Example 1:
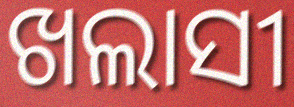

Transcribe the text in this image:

ଖଲାସୀ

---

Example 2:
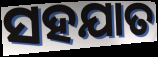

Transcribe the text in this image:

ସହଯାତ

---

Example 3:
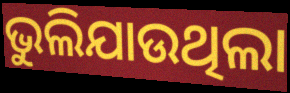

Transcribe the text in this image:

ଭୁଲିଯାଉଥିଲା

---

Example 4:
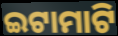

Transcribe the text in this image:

ଇଟାମାଟି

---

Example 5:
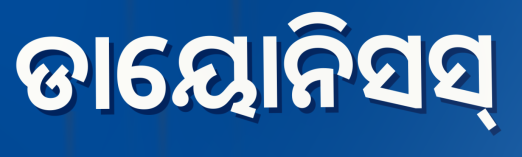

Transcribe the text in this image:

ଡାୟୋନିସସ୍